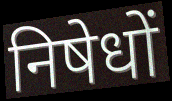
निषेधों